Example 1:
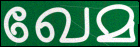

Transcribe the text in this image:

ഖേമ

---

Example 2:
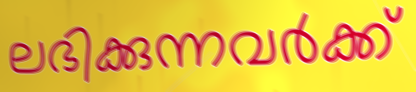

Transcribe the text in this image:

ലഭിക്കുന്നവർക്ക്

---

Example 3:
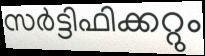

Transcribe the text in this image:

സർട്ടിഫിക്കറ്റും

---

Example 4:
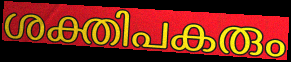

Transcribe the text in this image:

ശക്തിപകരും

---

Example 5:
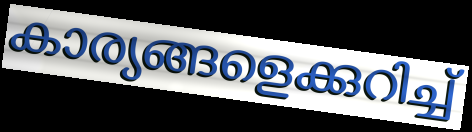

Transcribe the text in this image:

കാര്യങ്ങളെക്കുറിച്ച്